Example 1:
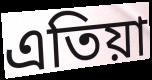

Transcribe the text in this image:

এতিয়া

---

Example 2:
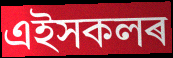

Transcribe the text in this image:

এইসকলৰ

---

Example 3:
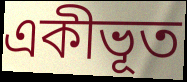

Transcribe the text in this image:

একীভূত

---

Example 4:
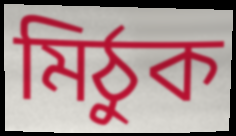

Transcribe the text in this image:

মিঠুক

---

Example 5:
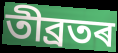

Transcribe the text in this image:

তীব্ৰতৰ